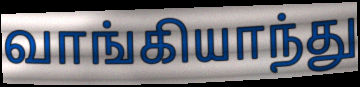
வாங்கியாந்து